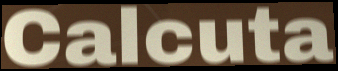
Calcuta